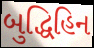
બુદ્ધિહિન